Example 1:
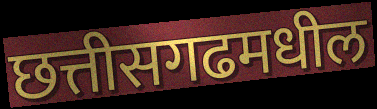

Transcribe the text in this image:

छत्तीसगढमधील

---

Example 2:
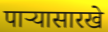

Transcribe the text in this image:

पाऱ्यासारखे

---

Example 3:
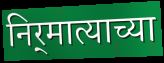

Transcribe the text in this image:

निर्मात्याच्या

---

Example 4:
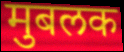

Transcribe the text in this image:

मुबलक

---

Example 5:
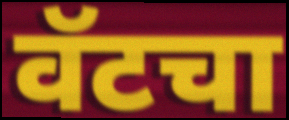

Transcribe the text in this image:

वॅटचा